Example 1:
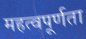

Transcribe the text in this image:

महत्वपूर्णता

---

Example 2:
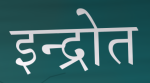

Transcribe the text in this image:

इन्द्रोत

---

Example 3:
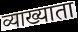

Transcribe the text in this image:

व्याख्याता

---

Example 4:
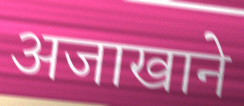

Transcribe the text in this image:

अजाखाने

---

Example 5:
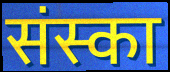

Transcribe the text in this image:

संस्का